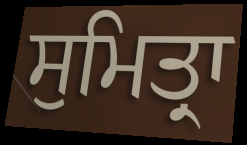
ਸੁਮਿਤ੍ਰਾ